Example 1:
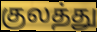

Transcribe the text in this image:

குலத்து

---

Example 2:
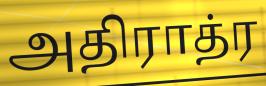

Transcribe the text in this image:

அதிராத்ர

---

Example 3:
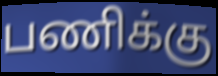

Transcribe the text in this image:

பணிக்கு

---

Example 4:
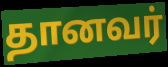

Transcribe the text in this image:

தானவர்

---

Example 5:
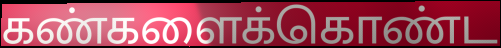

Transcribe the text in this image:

கண்களைக்கொண்ட